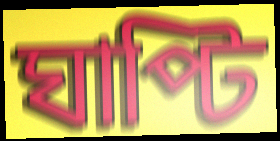
ঘাপ্টি